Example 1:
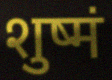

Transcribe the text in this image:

शुष्मं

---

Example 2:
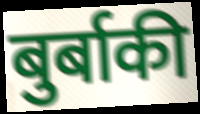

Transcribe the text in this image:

बुर्बाकी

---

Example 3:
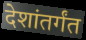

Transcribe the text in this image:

देशांतर्गंत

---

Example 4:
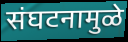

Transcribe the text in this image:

संघटनामुळे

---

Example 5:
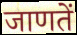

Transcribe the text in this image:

जाणतें